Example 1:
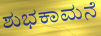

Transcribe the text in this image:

ಶುಭಕಾಮನೆ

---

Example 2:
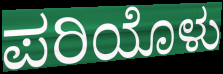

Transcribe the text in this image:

ಪರಿಯೊಳು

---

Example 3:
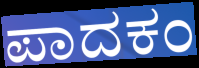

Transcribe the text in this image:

ಪಾದಕಂ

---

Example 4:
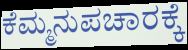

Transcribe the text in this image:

ಕೆಮ್ಮನುಪಚಾರಕ್ಕೆ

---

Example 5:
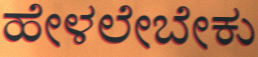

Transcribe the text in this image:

ಹೇಳಲೇಬೇಕು